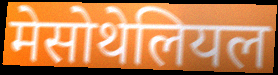
मेसोथेलियल